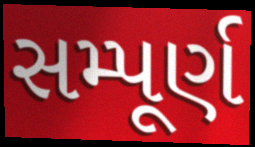
સમ્પૂર્ણ